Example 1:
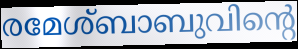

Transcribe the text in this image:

രമേശ്ബാബുവിന്റെ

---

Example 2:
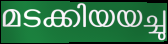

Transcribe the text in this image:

മടക്കിയയച്ചു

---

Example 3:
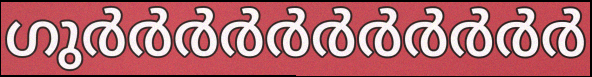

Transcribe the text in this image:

ഗുർർർർർർർർർർർ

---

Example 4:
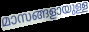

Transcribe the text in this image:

മാസങ്ങളായുള്ള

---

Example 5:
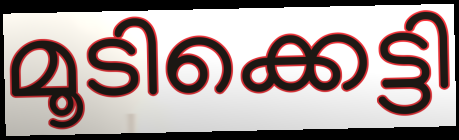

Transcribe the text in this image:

മൂടിക്കെട്ടി